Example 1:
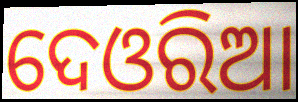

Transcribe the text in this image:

ଦେଓରିଆ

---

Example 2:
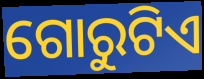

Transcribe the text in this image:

ଗୋରୁଟିଏ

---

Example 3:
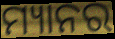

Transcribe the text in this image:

ମ୍ୟାନର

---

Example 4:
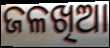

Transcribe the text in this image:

ଜଳଖିଆ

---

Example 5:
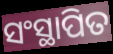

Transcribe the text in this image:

ସଂସ୍ଥାପିତ